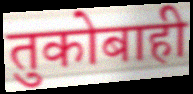
तुकोबाही